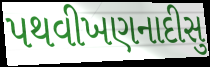
પથવીખણનાદીસુ